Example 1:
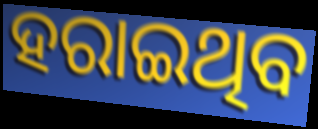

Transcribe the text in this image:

ହରାଇଥିବ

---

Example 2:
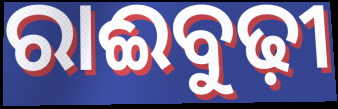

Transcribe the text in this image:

ରାଈବୁଢ଼ୀ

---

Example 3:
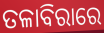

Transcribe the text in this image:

ତଳାବିରାରେ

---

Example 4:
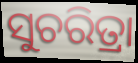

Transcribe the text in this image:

ସୁଚରିତ୍ରା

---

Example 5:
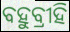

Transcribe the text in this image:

ବହୁବ୍ରୀହି